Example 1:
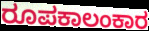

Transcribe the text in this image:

ರೂಪಕಾಲಂಕಾರ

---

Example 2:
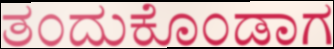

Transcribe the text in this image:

ತಂದುಕೊಂಡಾಗ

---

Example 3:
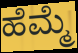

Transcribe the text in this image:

ಹೆಮ್ಮೆ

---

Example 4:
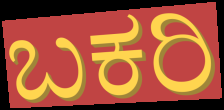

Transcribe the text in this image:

ಬಕರಿ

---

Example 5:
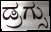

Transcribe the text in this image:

ಡ್ರಗ್ಸು